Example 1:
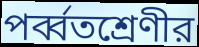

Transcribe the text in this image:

পর্ব্বতশ্রেণীর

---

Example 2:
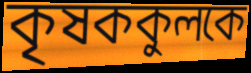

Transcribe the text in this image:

কৃষককুলকে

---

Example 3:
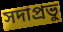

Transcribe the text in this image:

সদাপ্রভু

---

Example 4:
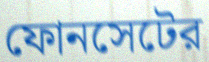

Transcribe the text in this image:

ফোনসেটের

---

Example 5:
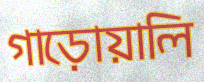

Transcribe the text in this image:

গাড়োয়ালি